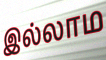
இல்லாம